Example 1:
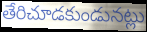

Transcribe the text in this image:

తేరిచూడకుండునట్లు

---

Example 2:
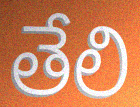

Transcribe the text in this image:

తేలి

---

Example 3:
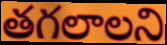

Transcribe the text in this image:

తగలాలని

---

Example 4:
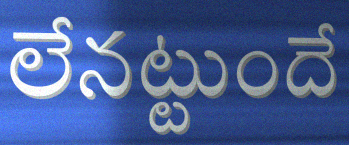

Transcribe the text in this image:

లేనట్టుందే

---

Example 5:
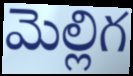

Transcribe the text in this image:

మెల్లిగ